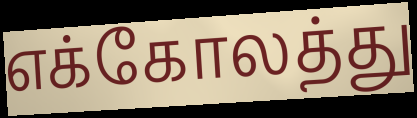
எக்கோலத்து